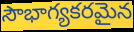
సౌభాగ్యకరమైన